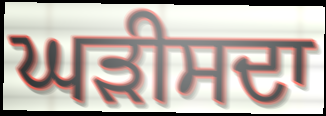
ਘੜੀਸਦਾ